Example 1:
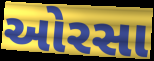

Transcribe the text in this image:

ઓરસા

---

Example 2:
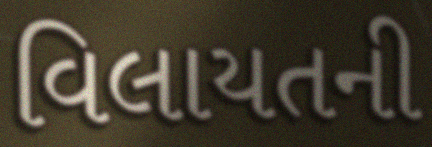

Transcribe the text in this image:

વિલાયતની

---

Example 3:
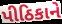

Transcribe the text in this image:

પીઠિકાને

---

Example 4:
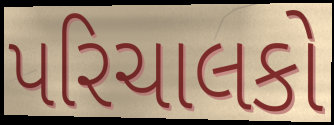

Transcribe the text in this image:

પરિચાલકો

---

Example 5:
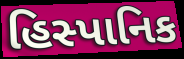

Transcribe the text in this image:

હિસ્પાનિક